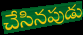
చేసినపుడు